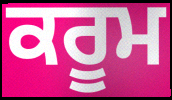
ਕਰੂਮ